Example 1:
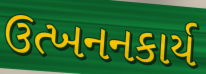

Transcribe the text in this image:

ઉત્ખનનકાર્ય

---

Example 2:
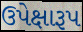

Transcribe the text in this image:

ઉપેક્ષારૂપ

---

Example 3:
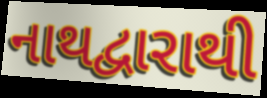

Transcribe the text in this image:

નાથદ્વારાથી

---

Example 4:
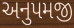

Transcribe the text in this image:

અનુપમજી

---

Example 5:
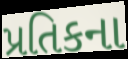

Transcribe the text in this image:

પ્રતિકના